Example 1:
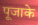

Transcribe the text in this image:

पूजाके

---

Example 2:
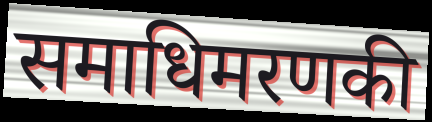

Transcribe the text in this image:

समाधिमरणकी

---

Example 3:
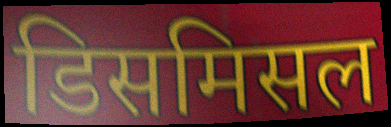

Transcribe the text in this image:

डिसमिसल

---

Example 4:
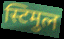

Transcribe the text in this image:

स्टिमुल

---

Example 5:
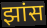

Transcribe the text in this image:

झांस